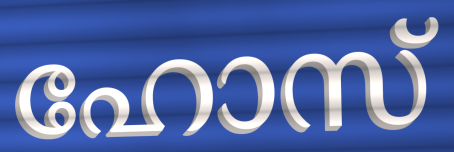
ഹോസ്